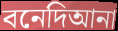
বনেদিআনা